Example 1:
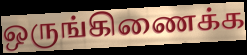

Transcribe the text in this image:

ஒருங்கிணைக்க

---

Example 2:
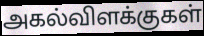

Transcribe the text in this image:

அகல்விளக்குகள்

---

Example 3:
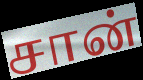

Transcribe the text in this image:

சான்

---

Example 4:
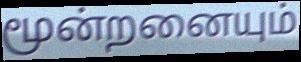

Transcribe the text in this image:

மூன்றனையும்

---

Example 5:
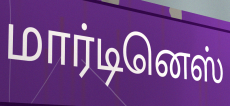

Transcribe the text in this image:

மார்டினெஸ்